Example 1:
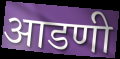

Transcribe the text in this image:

आडणी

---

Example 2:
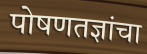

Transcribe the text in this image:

पोषणतज्ञांचा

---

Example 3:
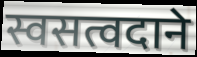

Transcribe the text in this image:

स्वसत्वदाने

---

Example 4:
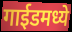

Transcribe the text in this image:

गाईडमध्ये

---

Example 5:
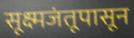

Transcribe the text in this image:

सूक्ष्मजंतूपासून